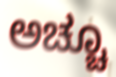
ಅಚ್ಚೂ